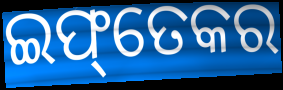
ଇଫ୍‌ତେକର